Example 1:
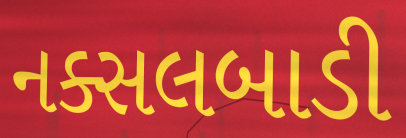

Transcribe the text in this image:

નક્સલબાડી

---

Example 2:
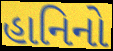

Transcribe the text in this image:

હાનિનો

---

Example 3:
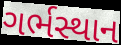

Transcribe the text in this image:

ગર્ભસ્થાન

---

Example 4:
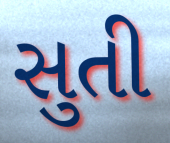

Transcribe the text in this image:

સુતી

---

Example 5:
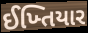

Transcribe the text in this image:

ઈખ્તિયાર